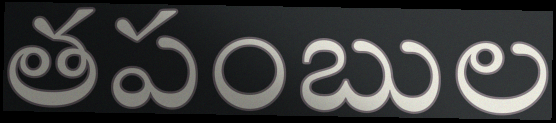
తపంబుల